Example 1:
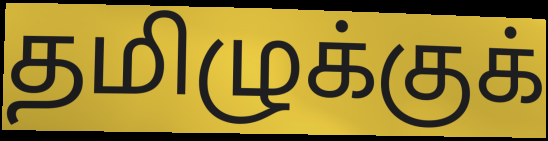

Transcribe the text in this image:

தமிழுக்குக்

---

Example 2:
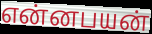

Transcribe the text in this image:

என்னபயன்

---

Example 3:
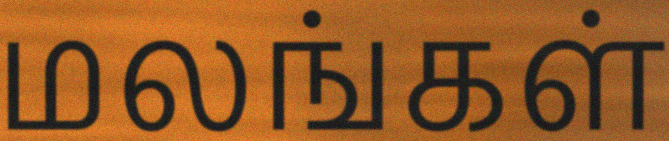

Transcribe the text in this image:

மலங்கள்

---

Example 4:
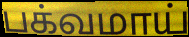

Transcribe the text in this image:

பக்வமாய்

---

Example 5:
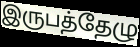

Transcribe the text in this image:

இருபத்தேழு